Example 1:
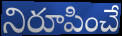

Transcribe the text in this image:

నిరూపించే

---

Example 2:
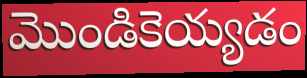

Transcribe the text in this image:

మొండికెయ్యడం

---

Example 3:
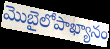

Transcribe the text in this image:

మొబైలోపాఖ్యానం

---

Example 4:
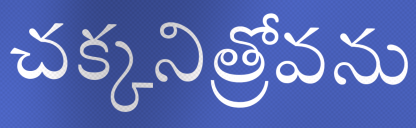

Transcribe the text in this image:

చక్కనిత్రోవను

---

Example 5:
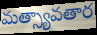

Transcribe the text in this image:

మత్స్యావతార